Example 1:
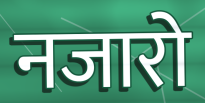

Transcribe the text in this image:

नजारो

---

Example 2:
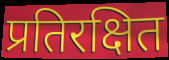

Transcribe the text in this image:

प्रतिरक्षित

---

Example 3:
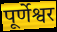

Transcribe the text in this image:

पूर्णेश्वर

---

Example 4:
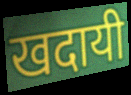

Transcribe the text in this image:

खदायी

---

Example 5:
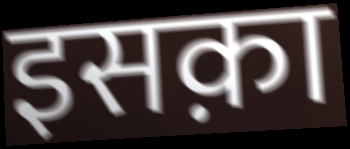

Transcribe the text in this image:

इसक़ा